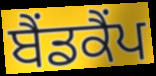
ਬੈਂਡਕੈਂਪ